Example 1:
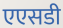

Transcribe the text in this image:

एएसडी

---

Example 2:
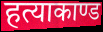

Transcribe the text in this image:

हत्याकाण्ड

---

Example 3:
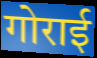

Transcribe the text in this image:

गोराई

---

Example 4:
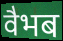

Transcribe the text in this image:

वैभब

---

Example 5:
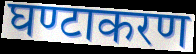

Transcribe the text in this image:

घण्टाकरण